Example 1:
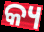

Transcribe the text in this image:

କ୍ୟ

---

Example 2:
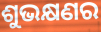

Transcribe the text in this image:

ଶୁଭକ୍ଷଣର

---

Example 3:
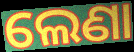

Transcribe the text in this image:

ଲେଣା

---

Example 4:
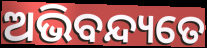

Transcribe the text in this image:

ଅଭିବନ୍ଦ୍ୟତେ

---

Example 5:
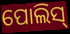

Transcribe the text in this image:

ପୋଲିସ୍